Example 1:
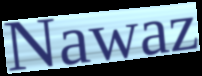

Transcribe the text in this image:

Nawaz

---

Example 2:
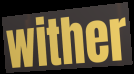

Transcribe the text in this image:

wither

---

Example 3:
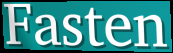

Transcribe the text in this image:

Fasten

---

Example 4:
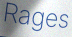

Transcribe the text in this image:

Rages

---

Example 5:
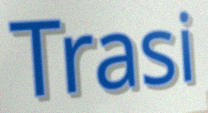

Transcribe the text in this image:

Trasi